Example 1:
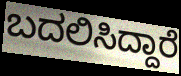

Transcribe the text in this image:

ಬದಲಿಸಿದ್ದಾರೆ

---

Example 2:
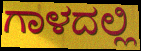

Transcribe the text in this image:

ಗಾಳದಲ್ಲಿ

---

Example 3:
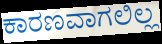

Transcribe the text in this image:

ಕಾರಣವಾಗಲಿಲ್ಲ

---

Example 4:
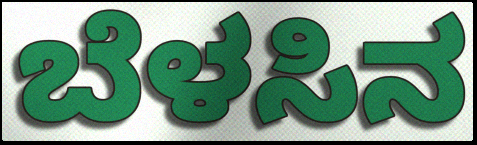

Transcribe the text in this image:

ಬೆಳಸಿನ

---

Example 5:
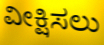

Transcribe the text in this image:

ವೀಕ್ಷಿಸಲು